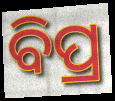
ବିପ୍ର